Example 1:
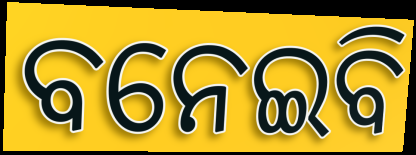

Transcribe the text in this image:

ବନେଇବି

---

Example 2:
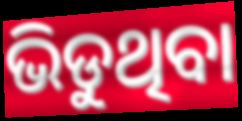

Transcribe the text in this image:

ଭିଡୁଥିବା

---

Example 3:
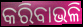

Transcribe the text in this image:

କରିବାଭଳି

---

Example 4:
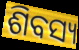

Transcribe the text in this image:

ଶିବସ୍ଯ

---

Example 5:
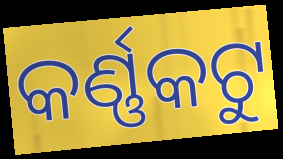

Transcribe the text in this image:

କର୍ଣ୍ଣକଟୁ